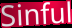
Sinful